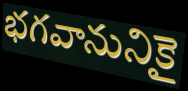
భగవానునికై